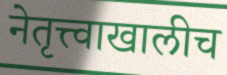
नेतृत्त्वाखालीच